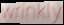
wrinkly